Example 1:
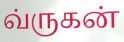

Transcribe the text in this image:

வ்ருகன்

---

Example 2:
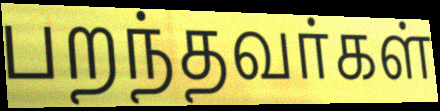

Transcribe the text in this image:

பறந்தவர்கள்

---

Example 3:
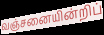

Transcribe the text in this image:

வஞ்சனையின்றிப்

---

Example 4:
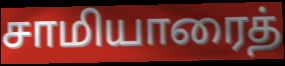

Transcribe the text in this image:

சாமியாரைத்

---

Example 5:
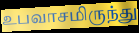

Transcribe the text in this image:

உபவாசமிருந்து